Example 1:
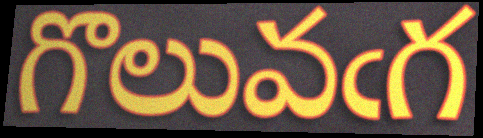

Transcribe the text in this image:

గొలువఁగ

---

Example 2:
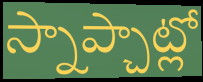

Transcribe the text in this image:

స్నాప్చాట్లో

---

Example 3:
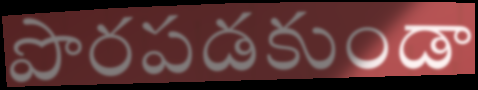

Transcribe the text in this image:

పొరపడకుండా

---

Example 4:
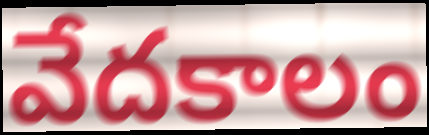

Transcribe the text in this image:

వేదకాలం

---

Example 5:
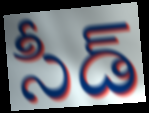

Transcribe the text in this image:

సీడ్